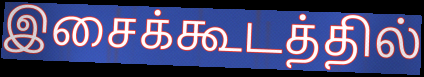
இசைக்கூடத்தில்